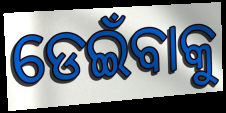
ଡେଇଁବାକୁ